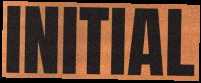
INITIAL